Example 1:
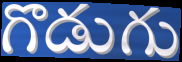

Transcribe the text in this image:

గొడుగు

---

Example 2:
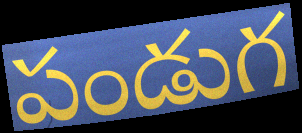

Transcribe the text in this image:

పండుగ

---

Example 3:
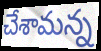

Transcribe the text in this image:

చేశామన్న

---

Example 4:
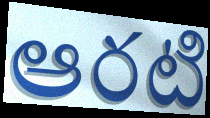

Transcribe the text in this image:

ఆరటి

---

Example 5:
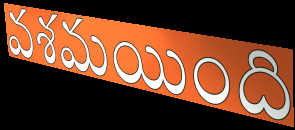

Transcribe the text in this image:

వశమయింది